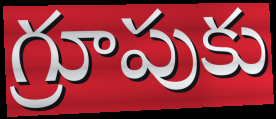
గ్రూపుకు